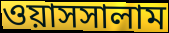
ওয়াসসালাম